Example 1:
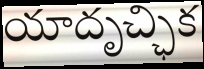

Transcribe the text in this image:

యాదృచ్ఛిక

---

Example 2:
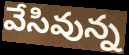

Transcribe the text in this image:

వేసివున్న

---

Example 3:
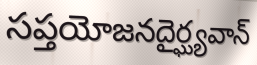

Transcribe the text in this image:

సప్తయోజనదైర్ఘ్యవాన్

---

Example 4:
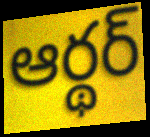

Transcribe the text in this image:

ఆర్థర్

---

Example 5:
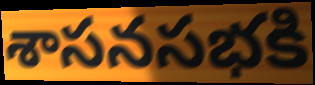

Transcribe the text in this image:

శాసనసభకి